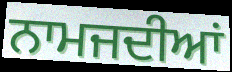
ਨਾਮਜਦੀਆਂ